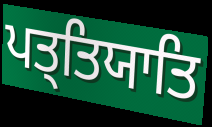
ਪਤ੍ਤਿਯਾਤਿ